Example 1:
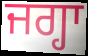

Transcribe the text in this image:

ਜਗ੍ਹਾ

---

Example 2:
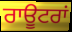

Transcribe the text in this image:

ਰਾਊਟਰਾਂ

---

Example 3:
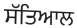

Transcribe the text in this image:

ਸੱਤਿਆਲ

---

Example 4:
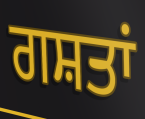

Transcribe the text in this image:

ਗਸ਼ਤਾਂ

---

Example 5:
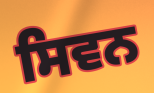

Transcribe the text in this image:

ਸਿਵਨ